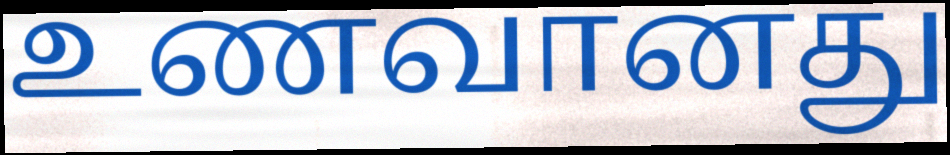
உணவானது